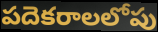
పదెకరాలలోపు